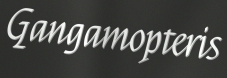
Gangamopteris